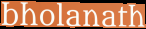
bholanath